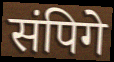
संपिगे